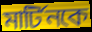
মার্টিনকে